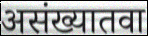
असंख्यातवा